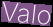
Valo